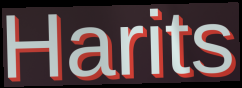
Harits